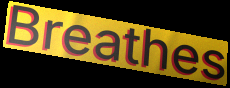
Breathes